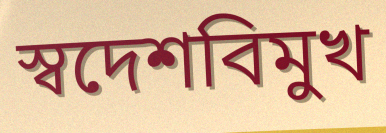
স্বদেশবিমুখ